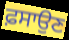
ਫ਼ਸਾਉਣ